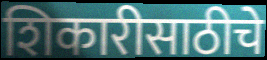
शिकारीसाठीचे